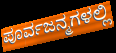
ಪೂರ್ವಜನ್ಮಗಳಲ್ಲಿ